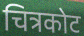
चित्रकोट